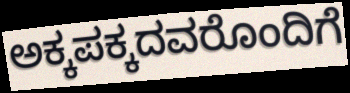
ಅಕ್ಕಪಕ್ಕದವರೊಂದಿಗೆ